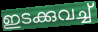
ഇടക്കുവച്ച്